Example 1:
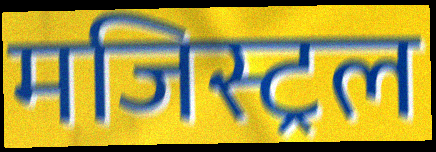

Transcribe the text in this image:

मजिस्ट्रल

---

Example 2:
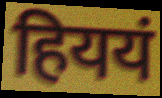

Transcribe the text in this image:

हिययं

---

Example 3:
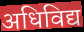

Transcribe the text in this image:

अधिविद्य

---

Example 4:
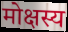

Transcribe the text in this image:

मोक्षस्य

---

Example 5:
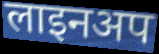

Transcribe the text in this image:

लाइनअप